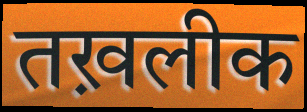
तख़लीक